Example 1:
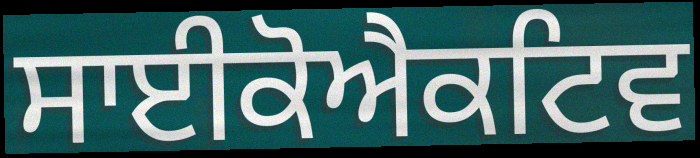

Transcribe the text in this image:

ਸਾਈਕੋਐਕਟਿਵ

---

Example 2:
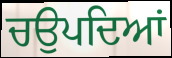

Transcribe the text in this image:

ਚਉਪਦਿਆਂ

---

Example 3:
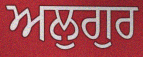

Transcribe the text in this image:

ਅਲੁਗੁਰ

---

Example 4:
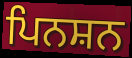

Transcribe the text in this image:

ਪਿਨਸ਼ਨ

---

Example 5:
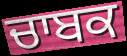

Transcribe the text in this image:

ਚਾਬਕ